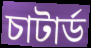
চাটার্ড